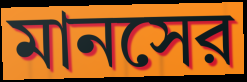
মানসের